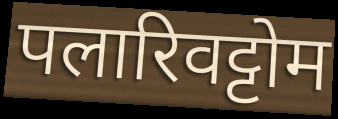
पलारिवट्टोम